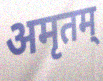
अमृतम्